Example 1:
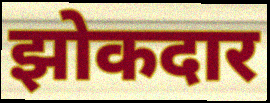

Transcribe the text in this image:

झोकदार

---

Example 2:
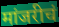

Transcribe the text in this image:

मांजरीचं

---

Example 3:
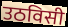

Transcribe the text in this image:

उठविसी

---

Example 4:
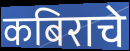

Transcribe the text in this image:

कबिराचे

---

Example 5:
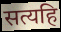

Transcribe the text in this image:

सत्यहि